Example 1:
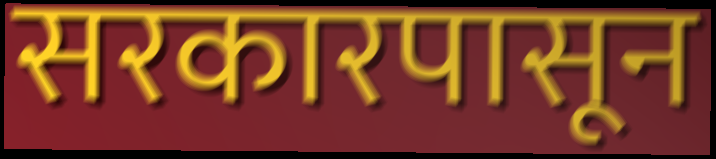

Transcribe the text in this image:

सरकारपासून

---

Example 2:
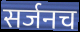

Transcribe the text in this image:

सर्जनच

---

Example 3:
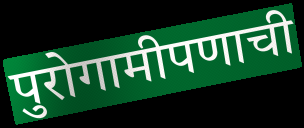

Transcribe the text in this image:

पुरोगामीपणाची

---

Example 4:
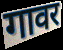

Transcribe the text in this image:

गावर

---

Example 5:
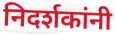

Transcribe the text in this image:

निदर्शकांनी